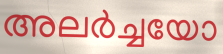
അലർച്ചയോ